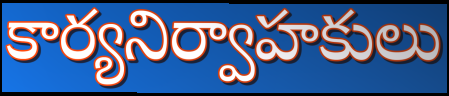
కార్యనిర్వాహకులు